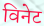
विनेट